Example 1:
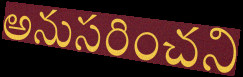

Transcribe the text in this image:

అనుసరించని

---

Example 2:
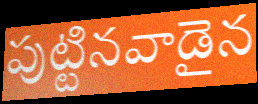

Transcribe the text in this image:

పుట్టినవాడైన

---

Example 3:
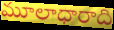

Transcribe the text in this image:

మూలాధారాది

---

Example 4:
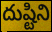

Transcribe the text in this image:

దుష్టిని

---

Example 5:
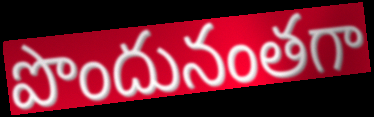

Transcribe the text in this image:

పొందునంతగా